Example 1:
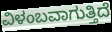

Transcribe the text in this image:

ವಿಳಂಬವಾಗುತ್ತಿದೆ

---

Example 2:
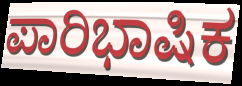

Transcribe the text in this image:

ಪಾರಿಭಾಷಿಕ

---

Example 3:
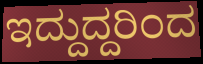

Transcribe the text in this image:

ಇದ್ದುದ್ದರಿಂದ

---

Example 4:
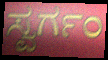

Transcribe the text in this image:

ಸ್ವರ್ಗಂ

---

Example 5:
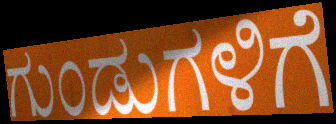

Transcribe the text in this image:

ಗುಂಡುಗಳಿಗೆ